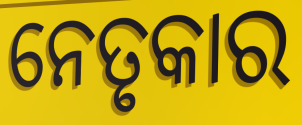
ନେତୃକାର